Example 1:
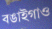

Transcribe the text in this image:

বঙাইগাও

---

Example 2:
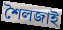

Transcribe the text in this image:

শৈলজাই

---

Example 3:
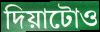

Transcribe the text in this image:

দিয়াটোও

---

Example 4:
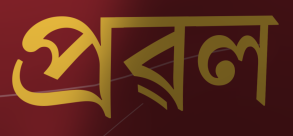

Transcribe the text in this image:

প্ৰৱল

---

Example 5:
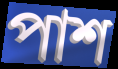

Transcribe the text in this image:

পাশ